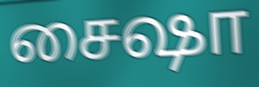
சைஷா